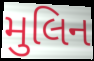
મુલિન